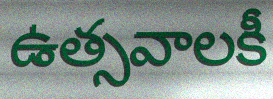
ఉత్సవాలకీ